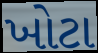
ખોટા